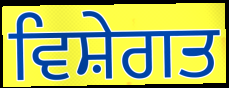
ਵਿਸ਼ੇਗਤ